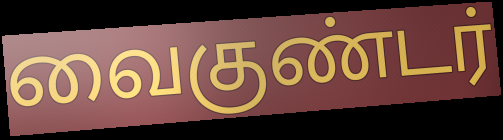
வைகுண்டர்